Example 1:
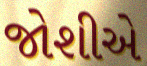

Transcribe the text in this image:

જોશીએ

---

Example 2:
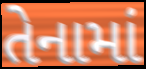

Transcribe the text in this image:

તેનામાં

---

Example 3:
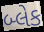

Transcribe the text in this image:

બ્લેક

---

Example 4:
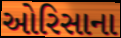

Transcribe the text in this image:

ઓરિસાના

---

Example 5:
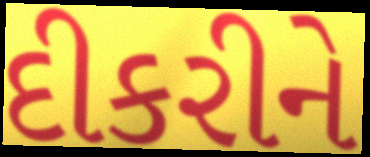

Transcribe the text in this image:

દીકરીને